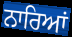
ਨਾਰਿਆਂ